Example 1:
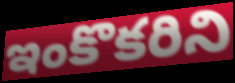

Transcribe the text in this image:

ఇంకొకరిని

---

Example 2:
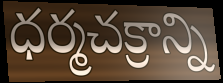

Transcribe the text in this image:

ధర్మచక్రాన్ని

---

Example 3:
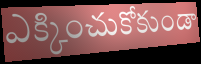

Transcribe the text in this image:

ఎక్కించుకోకుండా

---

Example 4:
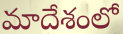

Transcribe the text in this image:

మాదేశంలో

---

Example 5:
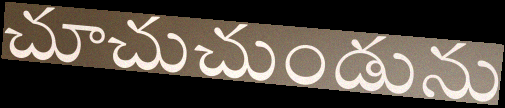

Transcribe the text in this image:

చూచుచుండును